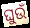
ଘୁଉଁ